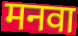
मनवा